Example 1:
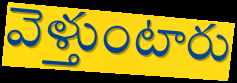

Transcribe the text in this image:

వెళ్తుంటారు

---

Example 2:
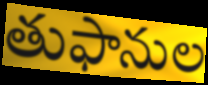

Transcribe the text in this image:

తుఫానుల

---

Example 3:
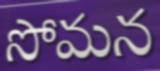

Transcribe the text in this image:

సోమన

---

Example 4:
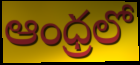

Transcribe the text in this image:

ఆంధ్రలో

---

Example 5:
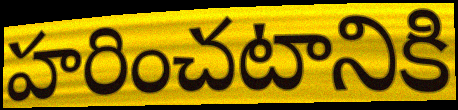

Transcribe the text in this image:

హరించటానికి